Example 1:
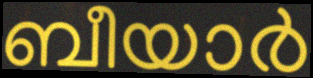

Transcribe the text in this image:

ബീയാർ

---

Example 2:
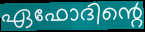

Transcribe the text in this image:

ഏഫോദിന്റെ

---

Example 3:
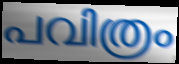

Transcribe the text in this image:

പവിത്രം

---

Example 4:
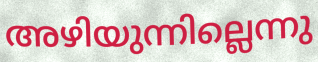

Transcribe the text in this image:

അഴിയുന്നില്ലെന്നു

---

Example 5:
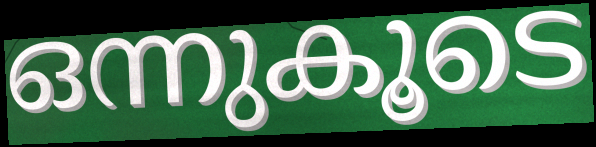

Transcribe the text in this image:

ഒന്നുകൂടെ